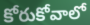
కోరుకోవాలో